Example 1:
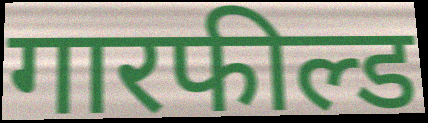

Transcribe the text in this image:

गारफील्ड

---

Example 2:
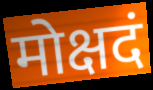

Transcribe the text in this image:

मोक्षदं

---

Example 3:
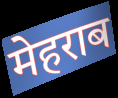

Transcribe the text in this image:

मेहराब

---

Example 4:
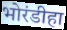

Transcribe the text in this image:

भोरंडीहा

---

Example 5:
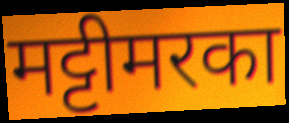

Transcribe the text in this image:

मट्टीमरका